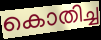
കൊതിച്ച